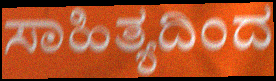
ಸಾಹಿತ್ಯದಿಂದ